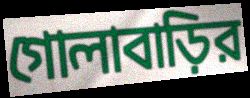
গোলাবাড়ির